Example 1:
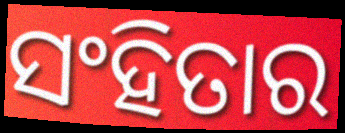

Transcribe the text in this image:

ସଂହିତାର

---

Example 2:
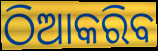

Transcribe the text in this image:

ଠିଆକରିବ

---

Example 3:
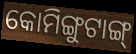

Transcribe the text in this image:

କୋମିଙ୍ଗୁଟାଙ୍ଗ୍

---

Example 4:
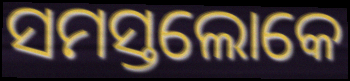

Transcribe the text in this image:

ସମସ୍ତଲୋକେ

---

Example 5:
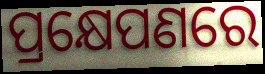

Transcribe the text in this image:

ପ୍ରକ୍ଷେପଣରେ